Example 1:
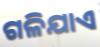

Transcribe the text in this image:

ଗଳିଯାଏ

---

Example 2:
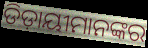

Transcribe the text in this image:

ଡିଡ଼ାୟୀମାନଙ୍କର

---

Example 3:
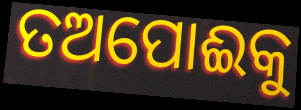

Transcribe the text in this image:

ତଅପୋଈକୁ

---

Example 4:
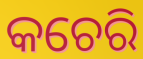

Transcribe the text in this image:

କଚେରି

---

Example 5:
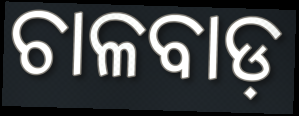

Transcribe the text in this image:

ଚାଳବାଡ଼